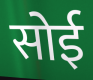
सोई